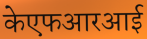
केएफआरआई